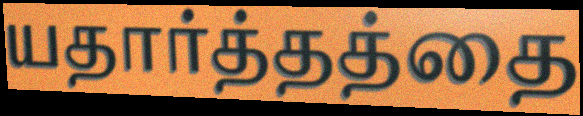
யதார்த்தத்தை